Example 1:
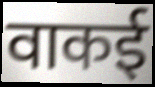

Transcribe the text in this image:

वाकई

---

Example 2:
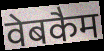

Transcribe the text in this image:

वेबकैम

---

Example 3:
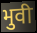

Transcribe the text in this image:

भुवी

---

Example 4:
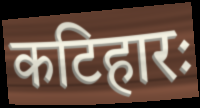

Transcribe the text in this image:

कटिहारः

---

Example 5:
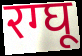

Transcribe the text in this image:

रग्घू